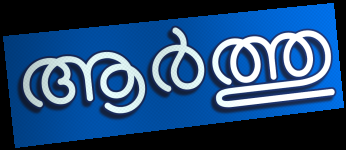
ആർത്തു